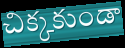
చిక్కకుండా